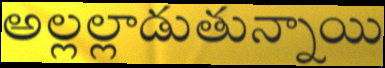
అల్లల్లాడుతున్నాయి